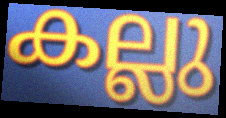
കല്ലു